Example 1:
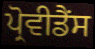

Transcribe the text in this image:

ਪ੍ਰੋਵੀਡੈਂਸ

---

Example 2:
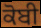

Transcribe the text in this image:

ਕੋਬੀ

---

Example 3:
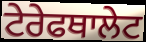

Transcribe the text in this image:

ਟੇਰੇਫਥਾਲੇਟ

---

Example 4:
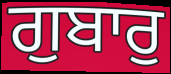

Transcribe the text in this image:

ਗੁਬਾਰੁ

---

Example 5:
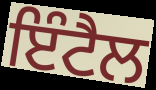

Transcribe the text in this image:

ਇੰਟੈਲ